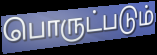
பொருட்படும்